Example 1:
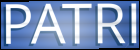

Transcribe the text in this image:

PATRI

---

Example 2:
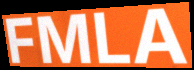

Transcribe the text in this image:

FMLA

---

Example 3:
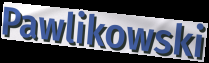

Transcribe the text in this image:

Pawlikowski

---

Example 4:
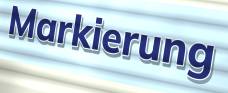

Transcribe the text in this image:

Markierung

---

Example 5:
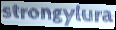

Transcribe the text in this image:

strongylura